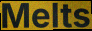
Melts